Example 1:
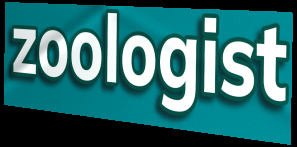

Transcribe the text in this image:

zoologist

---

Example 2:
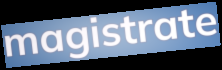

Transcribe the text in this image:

magistrate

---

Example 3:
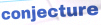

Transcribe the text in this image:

conjecture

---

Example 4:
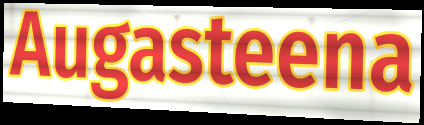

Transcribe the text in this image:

Augasteena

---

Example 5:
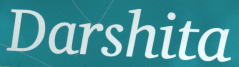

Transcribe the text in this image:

Darshita